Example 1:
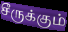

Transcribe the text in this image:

சீருக்கும்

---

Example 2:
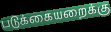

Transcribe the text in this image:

படுக்கையறைக்கு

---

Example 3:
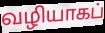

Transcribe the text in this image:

வழியாகப்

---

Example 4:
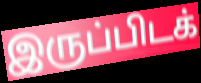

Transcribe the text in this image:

இருப்பிடக்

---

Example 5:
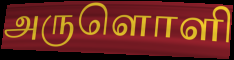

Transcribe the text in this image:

அருளொளி